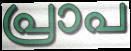
പ്രാപ